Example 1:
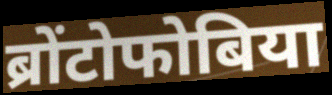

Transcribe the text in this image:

ब्रोंटोफोबिया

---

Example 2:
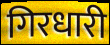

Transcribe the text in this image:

गिरधारी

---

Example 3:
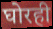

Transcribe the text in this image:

घोरही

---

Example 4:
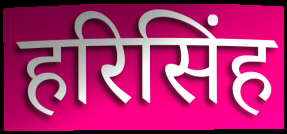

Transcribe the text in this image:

हरिसिंह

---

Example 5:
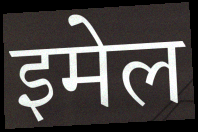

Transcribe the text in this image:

इमेल